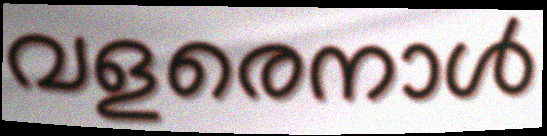
വളരെനാൾ